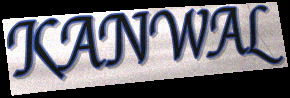
KANWAL